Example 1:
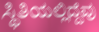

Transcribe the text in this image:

ಸ್ಥಿತಿಯಲ್ಲಿದ್ದೆವು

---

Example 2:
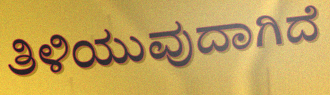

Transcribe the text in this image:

ತಿಳಿಯುವುದಾಗಿದೆ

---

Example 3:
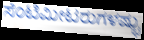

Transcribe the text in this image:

ಸೆಂಟಿಮೀಟರುಗಳಷ್ಟು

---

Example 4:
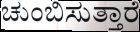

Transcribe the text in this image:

ಚುಂಬಿಸುತ್ತಾರೆ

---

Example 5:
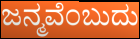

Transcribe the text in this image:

ಜನ್ಮವೆಂಬುದು